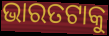
ଭାରତଟାକୁ